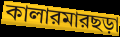
কালারমারছড়া